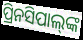
ପ୍ରିନସିପାଲ୍‍ଙ୍କ